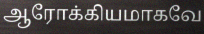
ஆரோக்கியமாகவே